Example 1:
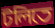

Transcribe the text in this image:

টলিতে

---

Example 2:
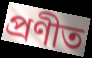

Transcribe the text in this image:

প্রণীত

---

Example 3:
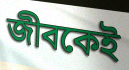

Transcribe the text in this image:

জীবকেই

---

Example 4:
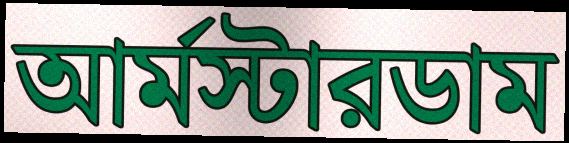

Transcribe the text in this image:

আর্মস্টারডাম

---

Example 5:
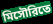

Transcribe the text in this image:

মিসৌরিতে